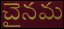
చైనమ